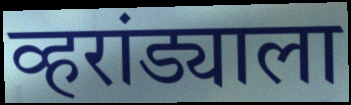
व्हरांड्याला